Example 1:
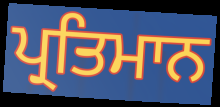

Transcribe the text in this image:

ਪ੍ਰਤਿਮਾਨ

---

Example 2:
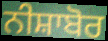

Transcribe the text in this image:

ਨੀਸ਼ਾਬੋਰ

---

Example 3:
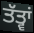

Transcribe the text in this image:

ਤੱਤ੍ਵਾਂ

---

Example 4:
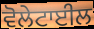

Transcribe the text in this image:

ਵੋਲੇਟਾਈਲ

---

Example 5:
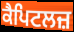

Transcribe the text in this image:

ਕੈਪਿਟਲਜ਼